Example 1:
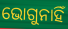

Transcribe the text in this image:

ଭୋଗୁନାହିଁ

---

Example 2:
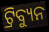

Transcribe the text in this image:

ଟ୍ରିବ୍ୟୁନ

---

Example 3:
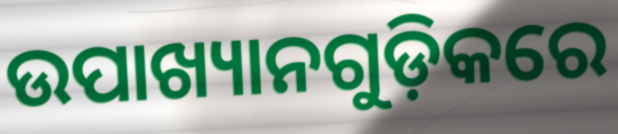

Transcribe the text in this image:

ଉପାଖ୍ୟାନଗୁଡ଼ିକରେ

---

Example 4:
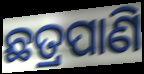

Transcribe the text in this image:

ଛତ୍ରପାଣି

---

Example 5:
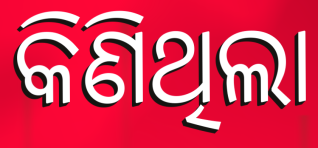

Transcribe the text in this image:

କିଣିଥିଲା